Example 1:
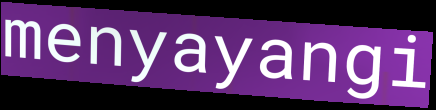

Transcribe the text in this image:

menyayangi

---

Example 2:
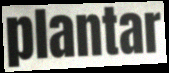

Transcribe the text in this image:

plantar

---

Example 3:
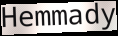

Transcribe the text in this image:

Hemmady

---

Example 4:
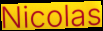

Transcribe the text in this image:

Nicolas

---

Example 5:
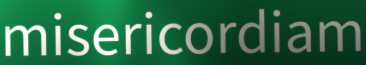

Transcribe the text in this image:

misericordiam